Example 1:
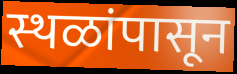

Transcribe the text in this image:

स्थळांपासून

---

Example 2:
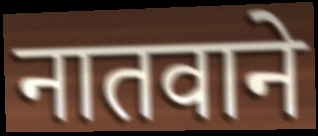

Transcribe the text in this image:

नातवाने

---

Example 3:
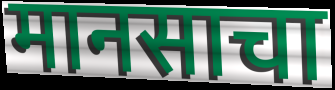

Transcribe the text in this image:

मानसाचा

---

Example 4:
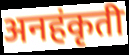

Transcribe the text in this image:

अनहंकृती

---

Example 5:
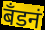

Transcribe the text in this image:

बँडनं